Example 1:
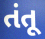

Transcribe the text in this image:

તંતૂ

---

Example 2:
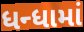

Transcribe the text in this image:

ધન્ધામાં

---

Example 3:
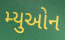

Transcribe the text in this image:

મ્યુઓન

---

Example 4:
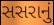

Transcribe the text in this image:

સસરાનું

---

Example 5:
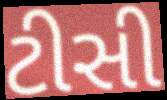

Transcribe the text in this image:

ટીસી